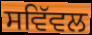
ਸਵਿੱਵਲ